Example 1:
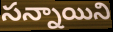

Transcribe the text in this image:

సన్నాయిని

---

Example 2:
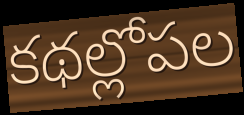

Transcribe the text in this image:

కథల్లోపల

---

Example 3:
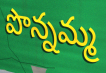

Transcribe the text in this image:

పొన్నమ్మ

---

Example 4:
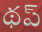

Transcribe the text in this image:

థప్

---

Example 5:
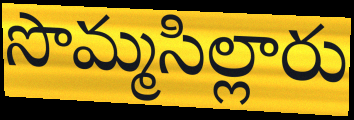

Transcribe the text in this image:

సొమ్మసిల్లారు